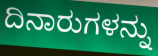
ದಿನಾರುಗಳನ್ನು